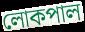
লোকপাল